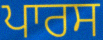
ਪਾਰਸ